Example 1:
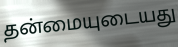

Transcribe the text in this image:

தன்மையுடையது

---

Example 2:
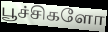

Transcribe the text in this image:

பூச்சிகளோ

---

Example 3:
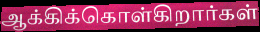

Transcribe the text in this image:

ஆக்கிக்கொள்கிறார்கள்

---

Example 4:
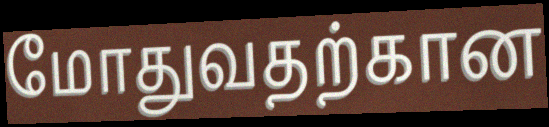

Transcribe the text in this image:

மோதுவதற்கான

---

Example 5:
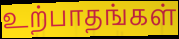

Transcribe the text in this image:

உற்பாதங்கள்